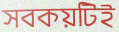
সবকয়টিই